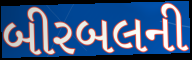
બીરબલની